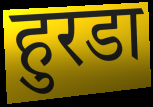
हुरडा